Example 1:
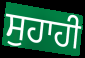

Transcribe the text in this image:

ਸੁਹਾਹੀ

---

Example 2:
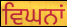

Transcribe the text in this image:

ਵਿਘਨਾਂ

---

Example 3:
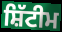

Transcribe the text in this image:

ਸ਼ਿੱਟੀਮ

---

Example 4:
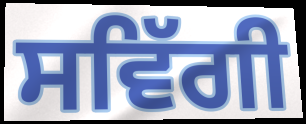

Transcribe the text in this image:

ਸਵਿੱਗੀ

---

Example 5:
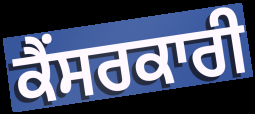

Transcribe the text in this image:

ਕੈਂਸਰਕਾਰੀ